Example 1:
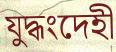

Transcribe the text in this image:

যুদ্ধংদেহী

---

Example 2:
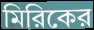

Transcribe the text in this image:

মিরিকের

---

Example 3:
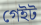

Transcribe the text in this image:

গেইট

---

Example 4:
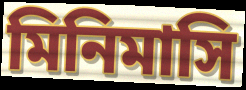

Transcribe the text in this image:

মিনিমাসি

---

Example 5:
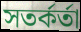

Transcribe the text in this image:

সতর্কর্তা